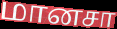
மானசா